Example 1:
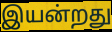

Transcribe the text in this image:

இயன்றது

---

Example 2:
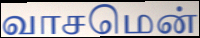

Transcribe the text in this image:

வாசமென்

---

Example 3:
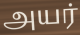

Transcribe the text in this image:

அயர்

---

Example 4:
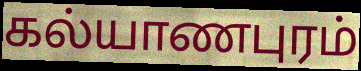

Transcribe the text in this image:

கல்யாணபுரம்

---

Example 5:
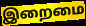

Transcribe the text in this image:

இறைமை